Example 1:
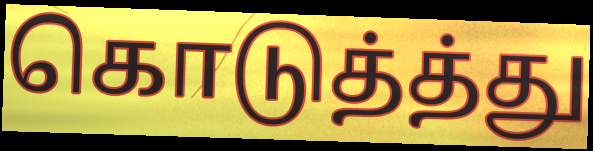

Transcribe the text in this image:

கொடுத்த்து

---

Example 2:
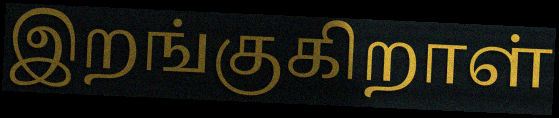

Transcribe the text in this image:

இறங்குகிறாள்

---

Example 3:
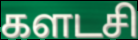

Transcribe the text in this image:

களடசி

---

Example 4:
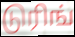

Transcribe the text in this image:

டுரிங்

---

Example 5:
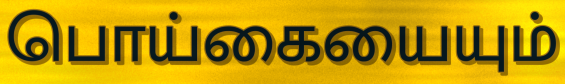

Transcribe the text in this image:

பொய்கையையும்